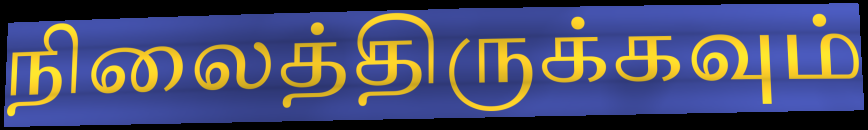
நிலைத்திருக்கவும்